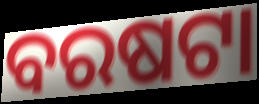
ବରଷଟା